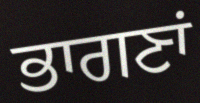
ਭਾਗਣਾਂ